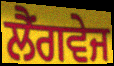
ਲੈਂਗਵੇਜ